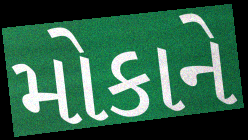
મોકાને